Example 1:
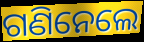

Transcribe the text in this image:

ଗଣିନେଲେ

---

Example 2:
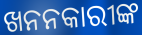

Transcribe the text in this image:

ଖନନକାରୀଙ୍କ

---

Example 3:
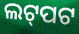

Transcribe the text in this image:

ଲଟ୍‌ପଟ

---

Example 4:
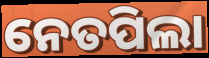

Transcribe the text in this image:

ନେତପିଲା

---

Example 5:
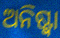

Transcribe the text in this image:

ଅନିଷ୍ଟ୍ୱା